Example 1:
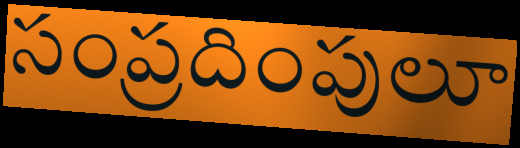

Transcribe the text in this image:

సంప్రదింపులూ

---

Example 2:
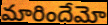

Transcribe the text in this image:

మారిందేమో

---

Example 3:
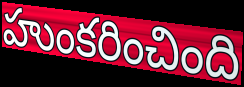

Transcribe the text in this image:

హుంకరించింది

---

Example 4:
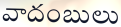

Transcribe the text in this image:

వాదంబులు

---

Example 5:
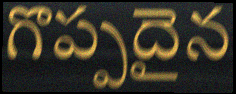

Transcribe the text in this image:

గొప్పదైన